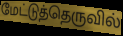
மேட்டுத்தெருவில்